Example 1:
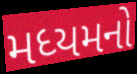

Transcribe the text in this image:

મધ્યમનો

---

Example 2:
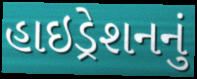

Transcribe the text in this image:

હાઇડ્રેશનનું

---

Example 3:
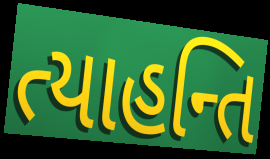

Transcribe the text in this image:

ત્યાહન્તિ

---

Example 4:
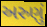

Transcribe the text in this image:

અરુણું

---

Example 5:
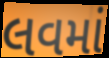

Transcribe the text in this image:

લવમાં